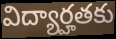
విద్యార్హతకు